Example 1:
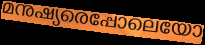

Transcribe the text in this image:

മനുഷ്യരെപ്പോലെയോ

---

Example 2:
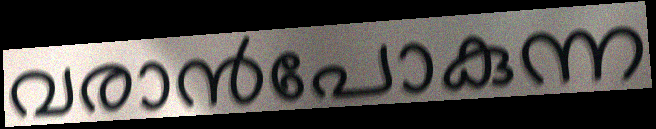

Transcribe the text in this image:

വരാൻപോകുന്ന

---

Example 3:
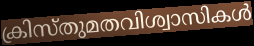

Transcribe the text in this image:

ക്രിസ്തുമതവിശ്വാസികൾ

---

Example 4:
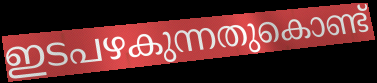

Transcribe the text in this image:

ഇടപഴകുന്നതുകൊണ്ട്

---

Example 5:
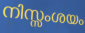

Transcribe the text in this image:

നിസ്സംശയം